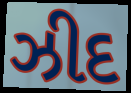
ઝીદ